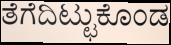
ತೆಗೆದಿಟ್ಟುಕೊಂಡ